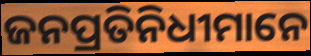
ଜନପ୍ରତିନିଧୀମାନେ